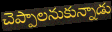
చెప్పాలనుకున్నాడు